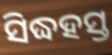
ସିଦ୍ଧହସ୍ତ